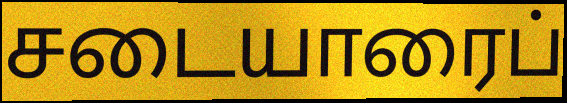
சடையாரைப்